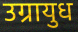
उग्रायुध